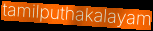
tamilputhakalayam